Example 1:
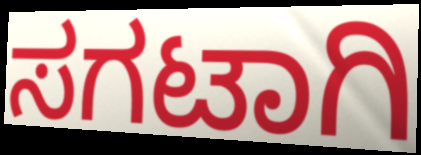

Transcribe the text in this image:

ಸಗಟಾಗಿ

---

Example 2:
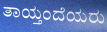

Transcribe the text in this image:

ತಾಯ್ತಂದೆಯರು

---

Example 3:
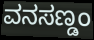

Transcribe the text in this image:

ವನಸಣ್ಡಂ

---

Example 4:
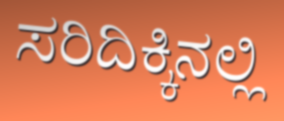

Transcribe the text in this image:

ಸರಿದಿಕ್ಕಿನಲ್ಲಿ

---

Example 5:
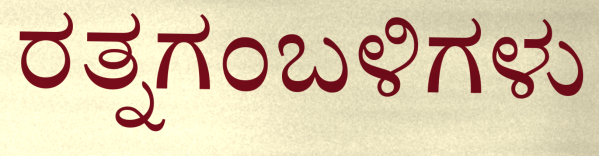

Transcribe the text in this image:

ರತ್ನಗಂಬಳಿಗಳು